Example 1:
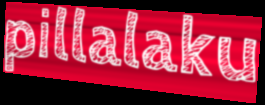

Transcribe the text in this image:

pillalaku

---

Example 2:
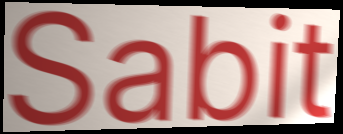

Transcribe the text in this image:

Sabit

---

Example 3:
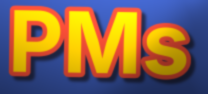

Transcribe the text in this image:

PMs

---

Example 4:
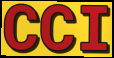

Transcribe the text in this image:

CCI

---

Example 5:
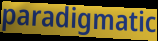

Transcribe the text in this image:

paradigmatic